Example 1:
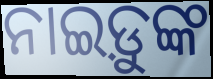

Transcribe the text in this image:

ନାଇଡ଼ୁଙ୍କ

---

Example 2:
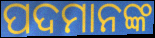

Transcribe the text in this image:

ପଦମାନଙ୍କ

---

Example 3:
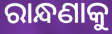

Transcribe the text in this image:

ରାନ୍ଧଣାକୁ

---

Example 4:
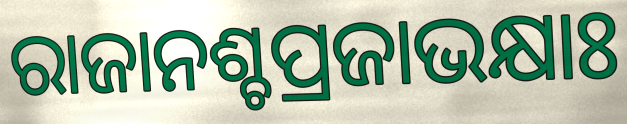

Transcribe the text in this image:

ରାଜାନଶ୍ଚପ୍ରଜାଭକ୍ଷାଃ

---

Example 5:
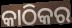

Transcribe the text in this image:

କାଠିକର